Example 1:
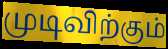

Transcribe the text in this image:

முடிவிற்கும்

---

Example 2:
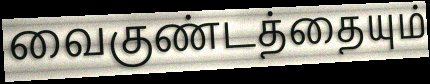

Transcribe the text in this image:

வைகுண்டத்தையும்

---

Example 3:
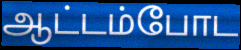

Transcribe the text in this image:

ஆட்டம்போட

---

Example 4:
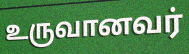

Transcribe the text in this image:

உருவானவர்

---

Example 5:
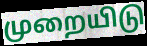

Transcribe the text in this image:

முறையிடு